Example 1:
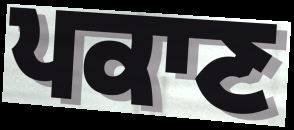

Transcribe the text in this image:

ਪਕਾਣ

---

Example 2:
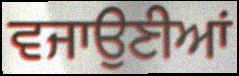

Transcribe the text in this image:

ਵਜਾਉਣੀਆਂ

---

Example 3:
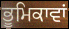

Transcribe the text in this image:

ਭੂਮਿਕਾਵਾਂ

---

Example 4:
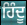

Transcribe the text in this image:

ਹਿੰਦੂ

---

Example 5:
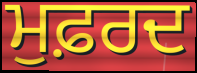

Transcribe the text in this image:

ਮੁਫ਼ਰਦ